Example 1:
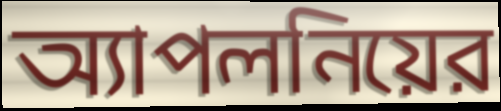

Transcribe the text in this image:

অ্যাপলনিয়ের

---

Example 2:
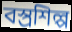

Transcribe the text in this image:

বস্ত্রশিল্প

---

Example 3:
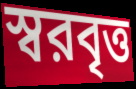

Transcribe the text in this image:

স্বরবৃত্ত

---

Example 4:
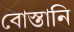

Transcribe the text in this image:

বোস্তানি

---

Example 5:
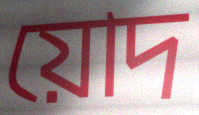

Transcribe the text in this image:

য়োদ